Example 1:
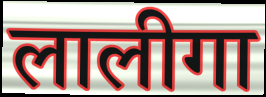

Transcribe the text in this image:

लालीगा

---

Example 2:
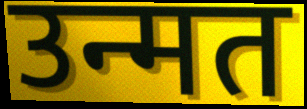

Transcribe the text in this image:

उन्मत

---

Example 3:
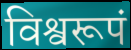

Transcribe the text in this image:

विश्वरूपं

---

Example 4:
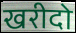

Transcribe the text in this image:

खरीदो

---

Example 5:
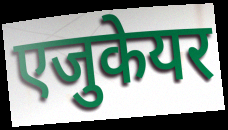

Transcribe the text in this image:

एजुकेयर